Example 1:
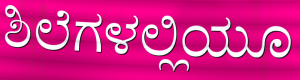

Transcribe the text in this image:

ಶಿಲೆಗಳಲ್ಲಿಯೂ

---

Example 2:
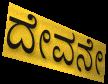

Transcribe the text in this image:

ದೇವನೇ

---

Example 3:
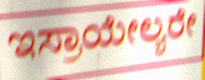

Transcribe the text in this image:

ಇಸ್ರಾಯೇಲ್ಯರೇ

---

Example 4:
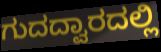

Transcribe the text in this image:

ಗುದದ್ವಾರದಲ್ಲಿ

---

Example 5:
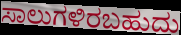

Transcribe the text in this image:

ಸಾಲುಗಳಿರಬಹುದು